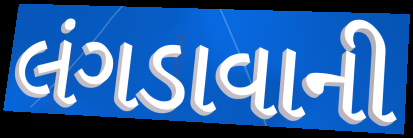
લંગડાવાની